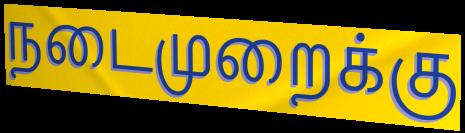
நடைமுறைக்கு